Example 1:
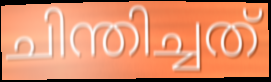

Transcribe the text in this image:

ചിന്തിച്ചത്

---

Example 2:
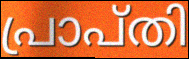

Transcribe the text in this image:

പ്രാപ്തി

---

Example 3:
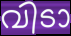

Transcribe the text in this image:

വിടാ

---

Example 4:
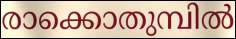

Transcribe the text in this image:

രാക്കൊതുമ്പിൽ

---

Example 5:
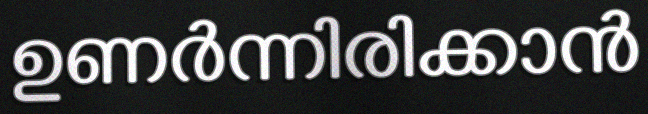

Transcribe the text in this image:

ഉണർന്നിരിക്കാൻ